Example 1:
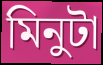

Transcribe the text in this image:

মিনুটা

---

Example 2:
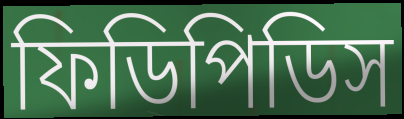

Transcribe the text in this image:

ফিডিপিডিস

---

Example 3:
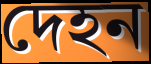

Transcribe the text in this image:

দেহন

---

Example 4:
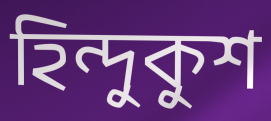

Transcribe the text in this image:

হিন্দুকুশ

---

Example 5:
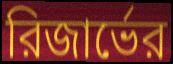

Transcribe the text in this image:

রিজার্ভের